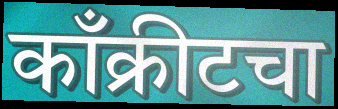
काँक्रीटचा